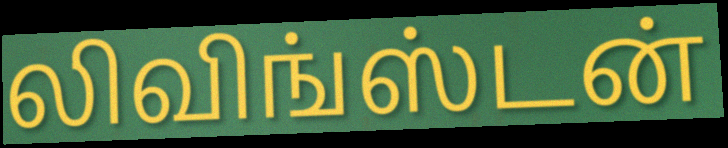
லிவிங்ஸ்டன்